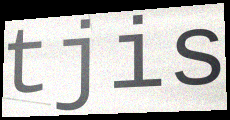
tjis